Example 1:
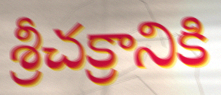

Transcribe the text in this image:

శ్రీచక్రానికి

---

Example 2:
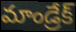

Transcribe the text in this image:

మాండ్రేక్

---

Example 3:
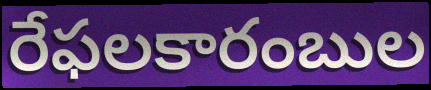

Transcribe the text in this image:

రేఫలకారంబుల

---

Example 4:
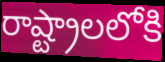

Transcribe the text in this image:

రాష్ట్రాలలోకి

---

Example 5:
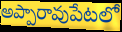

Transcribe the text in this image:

అప్పారావుపేటలో